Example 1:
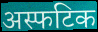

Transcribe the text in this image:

अस्फटिक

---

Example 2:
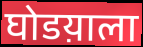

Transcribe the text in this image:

घोडय़ाला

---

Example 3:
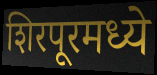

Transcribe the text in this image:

शिरपूरमध्ये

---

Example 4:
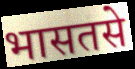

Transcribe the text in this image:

भासतसे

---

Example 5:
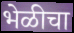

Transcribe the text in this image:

भेळीचा